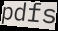
pdfs